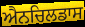
ਐਨਚਿਲਡਾਸ